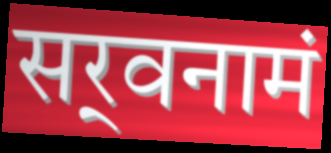
सर्वनामं